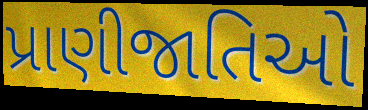
પ્રાણીજાતિઓ